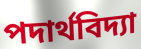
পদার্থবিদ্যা